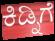
ಕಿಡ್ನಿಗೆ